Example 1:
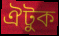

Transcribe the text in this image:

ঐটুক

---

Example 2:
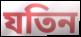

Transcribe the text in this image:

যতিন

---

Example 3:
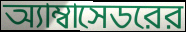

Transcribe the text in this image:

অ্যাম্বাসেডরের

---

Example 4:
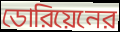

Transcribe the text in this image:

ডোরিয়েনের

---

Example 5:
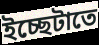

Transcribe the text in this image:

ইচ্ছেটাতে